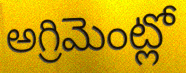
అగ్రిమెంట్లో